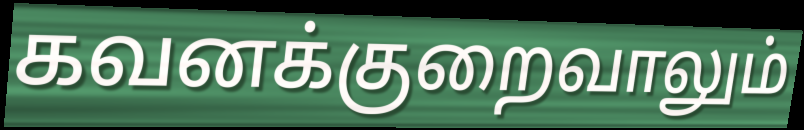
கவனக்குறைவாலும்